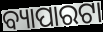
ବ୍ୟାପାରଟା